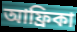
আফ্ৰিকা